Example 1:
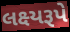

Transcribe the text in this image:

લક્ષ્યરૂપે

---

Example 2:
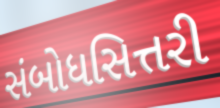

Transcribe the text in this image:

સંબોધસિત્તરી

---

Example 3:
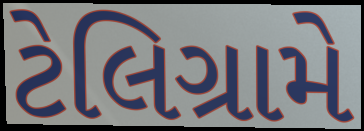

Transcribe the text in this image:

ટેલિગ્રામે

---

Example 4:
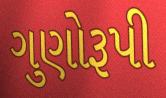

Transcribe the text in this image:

ગુણોરૂપી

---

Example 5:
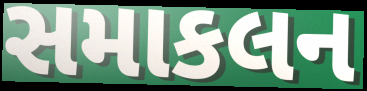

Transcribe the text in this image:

સમાકલન